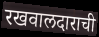
रखवालदाराची